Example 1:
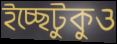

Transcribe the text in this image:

ইচ্ছেটুকুও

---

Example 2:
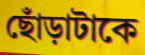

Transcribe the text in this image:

ছোঁড়াটাকে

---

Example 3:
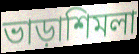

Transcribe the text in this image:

ভাড়াশিমলা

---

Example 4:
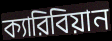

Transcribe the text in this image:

ক্যারিবিয়ান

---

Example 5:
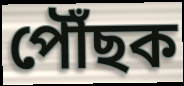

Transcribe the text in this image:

পৌঁছক